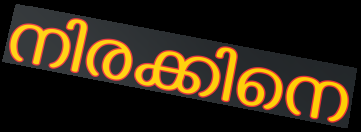
നിരക്കിനെ